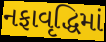
નફાવૃદ્ધિમાં